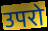
उपरो